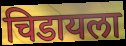
चिडायला